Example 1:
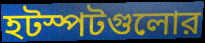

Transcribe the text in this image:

হটস্পটগুলোর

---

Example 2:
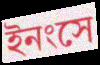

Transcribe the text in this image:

ইনংসে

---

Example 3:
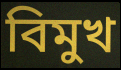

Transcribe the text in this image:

বিমুখ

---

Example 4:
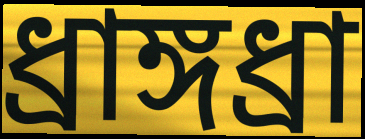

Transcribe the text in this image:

ধ্রাঙ্গধ্রা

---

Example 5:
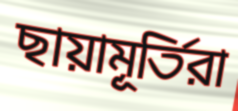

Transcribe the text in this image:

ছায়ামূর্তিরা